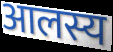
आलस्‍य